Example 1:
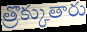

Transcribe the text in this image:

త్రొక్కుతారు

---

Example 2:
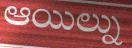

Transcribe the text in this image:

ఆయిల్ను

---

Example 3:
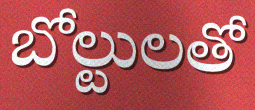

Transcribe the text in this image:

బోల్టులతో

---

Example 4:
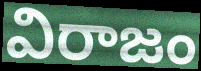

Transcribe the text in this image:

విరాజం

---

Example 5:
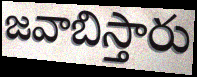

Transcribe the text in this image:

జవాబిస్తారు